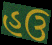
હઉ